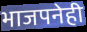
भाजपनेही